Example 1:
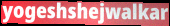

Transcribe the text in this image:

yogeshshejwalkar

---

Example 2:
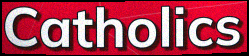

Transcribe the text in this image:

Catholics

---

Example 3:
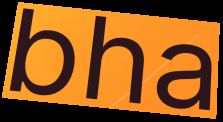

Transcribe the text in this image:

bha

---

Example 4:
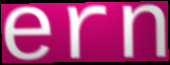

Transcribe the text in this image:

ern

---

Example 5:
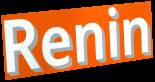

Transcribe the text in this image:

Renin